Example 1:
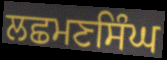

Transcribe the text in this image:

ਲਛਮਣਸਿੰਘ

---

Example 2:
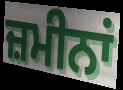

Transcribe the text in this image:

ਜ਼ਮੀਨਾਂ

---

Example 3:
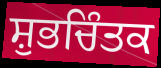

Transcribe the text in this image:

ਸ਼ੁਭਚਿੰਤਕ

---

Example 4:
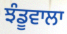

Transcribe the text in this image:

ਝੰਡੂਵਾਲਾ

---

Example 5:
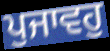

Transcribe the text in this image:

ਪੁਜਾਵਹੁ